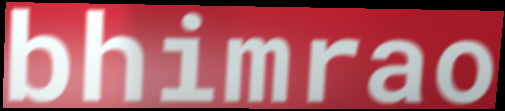
bhimrao